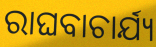
ରାଘବାଚାର୍ଯ୍ୟ